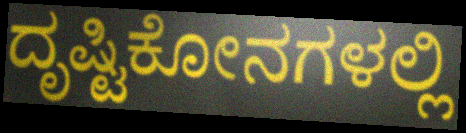
ದೃಷ್ಟಿಕೋನಗಳಲ್ಲಿ